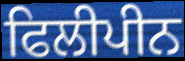
ਫਿਲੀਪੀਨ